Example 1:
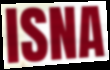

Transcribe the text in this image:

ISNA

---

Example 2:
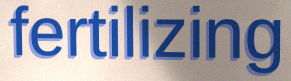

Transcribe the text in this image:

fertilizing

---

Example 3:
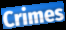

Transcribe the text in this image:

Crimes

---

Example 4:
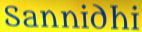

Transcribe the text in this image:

Sannidhi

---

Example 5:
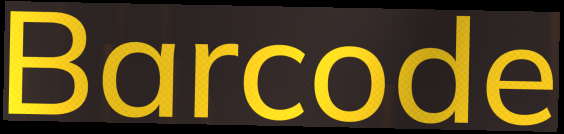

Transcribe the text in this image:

Barcode